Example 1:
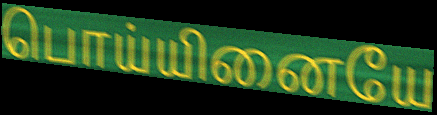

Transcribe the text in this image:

பொய்யினையே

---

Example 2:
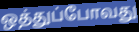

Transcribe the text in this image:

ஒத்துப்போவது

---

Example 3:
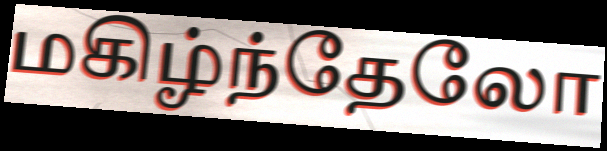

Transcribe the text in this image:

மகிழ்ந்தேலோ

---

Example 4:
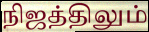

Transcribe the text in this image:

நிஜத்திலும்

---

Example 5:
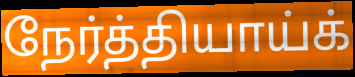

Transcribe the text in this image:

நேர்த்தியாய்க்